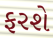
ફરશે